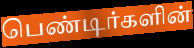
பெண்டிர்களின்